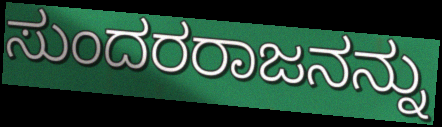
ಸುಂದರರಾಜನನ್ನು